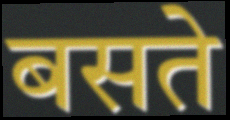
बसते